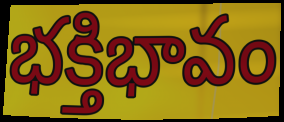
భక్తిభావం